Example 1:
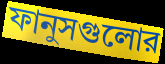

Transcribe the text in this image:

ফানুসগুলোর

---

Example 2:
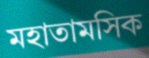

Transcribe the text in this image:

মহাতামসিক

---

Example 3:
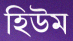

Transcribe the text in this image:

হিউম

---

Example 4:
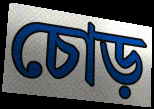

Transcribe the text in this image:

চোড়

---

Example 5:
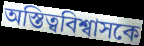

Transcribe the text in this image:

অস্তিত্ববিশ্বাসকে